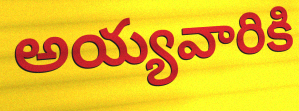
అయ్యవారికి